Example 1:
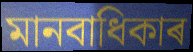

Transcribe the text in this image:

মানবাধিকাৰ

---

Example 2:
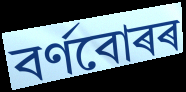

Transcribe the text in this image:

বৰ্ণবোৰৰ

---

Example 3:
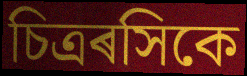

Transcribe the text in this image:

চিত্ৰৰসিকে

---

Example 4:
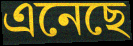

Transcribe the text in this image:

এনেছে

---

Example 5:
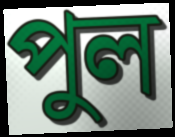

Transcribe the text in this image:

পুল